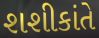
શશીકાંતે